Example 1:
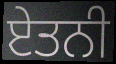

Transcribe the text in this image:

ਏਤਨੀ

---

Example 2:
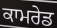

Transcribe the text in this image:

ਕਾਮਰੇਡ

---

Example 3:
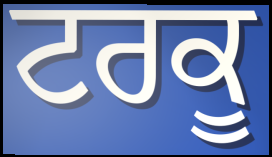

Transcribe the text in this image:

ਟਰਕੂ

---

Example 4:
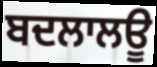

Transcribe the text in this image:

ਬਦਲਾਲਊ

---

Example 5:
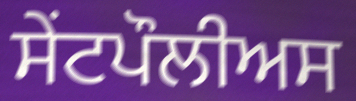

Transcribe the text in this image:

ਸੇਂਟਪੌਲੀਅਸ